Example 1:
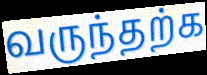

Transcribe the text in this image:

வருந்தற்க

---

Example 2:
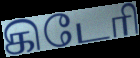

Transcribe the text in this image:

கிடேரி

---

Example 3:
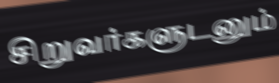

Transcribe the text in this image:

சிறுவர்களுடனும்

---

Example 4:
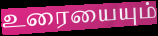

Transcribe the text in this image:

உரையையும்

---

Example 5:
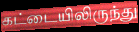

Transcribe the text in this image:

கட்டையிலிருந்து